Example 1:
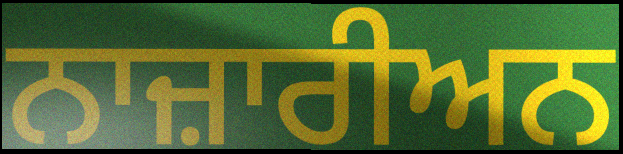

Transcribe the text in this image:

ਨਾਜ਼ਾਰੀਅਨ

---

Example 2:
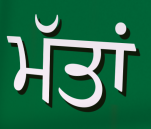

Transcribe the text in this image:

ਮੱਤਾਂ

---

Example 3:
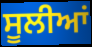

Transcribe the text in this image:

ਸੂਲੀਆਂ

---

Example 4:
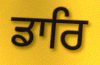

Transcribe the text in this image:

ਡਾਰਿ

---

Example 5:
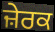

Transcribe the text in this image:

ਜ਼ੇਰਕ